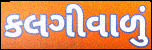
કલગીવાળું